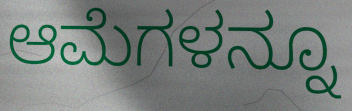
ಆಮೆಗಳನ್ನೂ